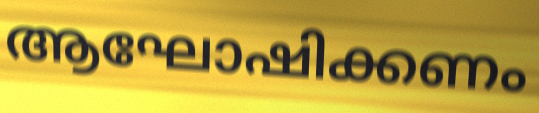
ആഘോഷിക്കണം